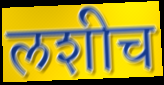
लशीच